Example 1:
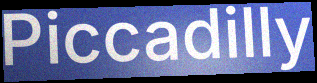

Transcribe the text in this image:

Piccadilly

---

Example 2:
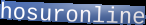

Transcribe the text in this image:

hosuronline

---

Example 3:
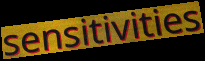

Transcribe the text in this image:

sensitivities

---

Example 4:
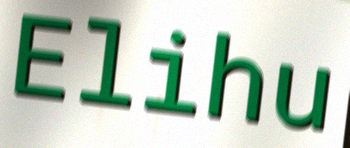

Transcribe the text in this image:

Elihu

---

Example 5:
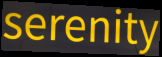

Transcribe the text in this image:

serenity